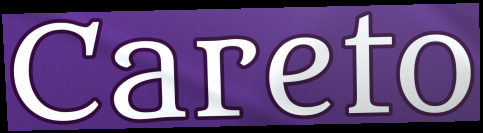
Careto